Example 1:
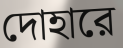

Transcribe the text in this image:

দোহারে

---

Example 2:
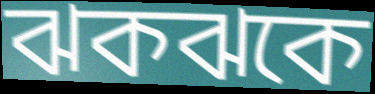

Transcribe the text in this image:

ঝকঝকে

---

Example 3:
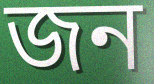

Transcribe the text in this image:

জন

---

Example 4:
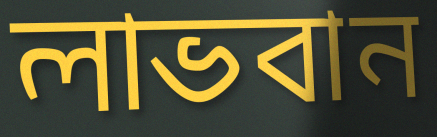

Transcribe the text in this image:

লাভবান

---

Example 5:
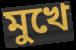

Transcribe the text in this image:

মুখে